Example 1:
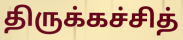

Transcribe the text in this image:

திருக்கச்சித்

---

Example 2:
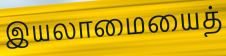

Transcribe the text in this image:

இயலாமையைத்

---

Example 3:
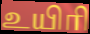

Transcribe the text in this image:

உயிரி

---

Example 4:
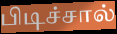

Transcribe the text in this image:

பிடிச்சால்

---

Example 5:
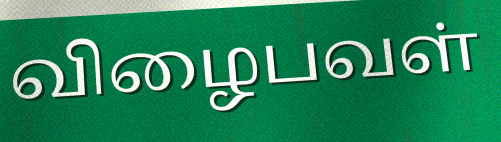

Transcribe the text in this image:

விழைபவள்